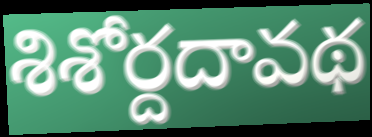
శిశోర్దదావథ